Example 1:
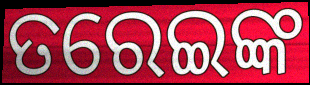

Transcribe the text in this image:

ତରେଇଙ୍କ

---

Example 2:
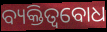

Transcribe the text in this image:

ବ୍ୟକ୍ତିତ୍ୱବୋଧ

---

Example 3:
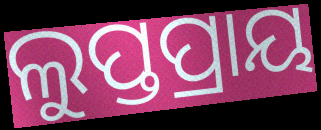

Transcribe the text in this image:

ଲୁପ୍ତପ୍ରାୟ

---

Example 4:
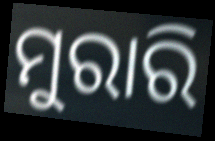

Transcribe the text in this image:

ମୁରାରି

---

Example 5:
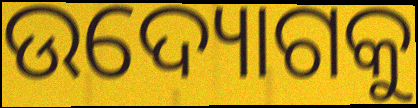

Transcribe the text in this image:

ଉଦ୍ୟୋଗକୁ